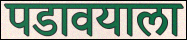
पडावयाला